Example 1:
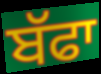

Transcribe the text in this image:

ਬੱਫਾ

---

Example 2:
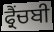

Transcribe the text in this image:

ਫ੍ਰੈਂਚਬੀ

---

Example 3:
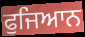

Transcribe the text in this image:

ਫੁਜਿਆਨ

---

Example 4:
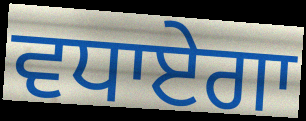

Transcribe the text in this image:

ਵਧਾਏਗਾ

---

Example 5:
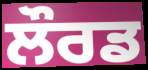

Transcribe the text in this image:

ਲੌਰਡ